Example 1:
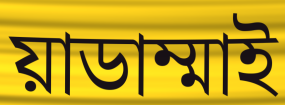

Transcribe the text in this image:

য়াডাম্মাই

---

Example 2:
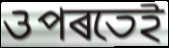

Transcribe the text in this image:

ওপৰতেই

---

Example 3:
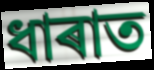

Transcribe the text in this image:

ধাৰাত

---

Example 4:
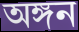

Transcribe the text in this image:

অঙ্গন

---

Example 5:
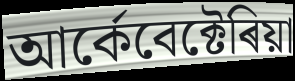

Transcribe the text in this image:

আৰ্কেবেক্টেৰিয়া